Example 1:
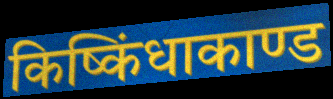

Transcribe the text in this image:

किष्किंधाकाण्ड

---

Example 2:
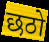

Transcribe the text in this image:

छठो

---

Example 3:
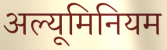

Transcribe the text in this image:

अल्यूमिनियम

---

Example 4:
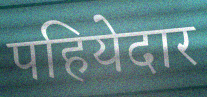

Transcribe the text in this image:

पहियेदार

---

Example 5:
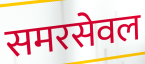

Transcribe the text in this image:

समरसेवल